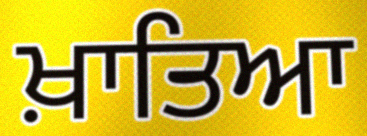
ਖ਼ਾਤਿਆ